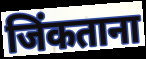
जिंकताना